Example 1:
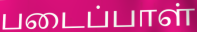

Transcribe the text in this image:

படைப்பாள்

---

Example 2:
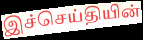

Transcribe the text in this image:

இச்செய்தியின்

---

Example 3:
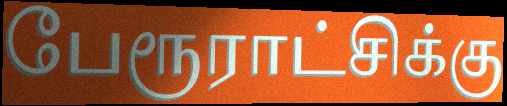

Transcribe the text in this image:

பேரூராட்சிக்கு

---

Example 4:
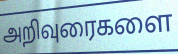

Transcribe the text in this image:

அறிவுரைகளை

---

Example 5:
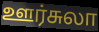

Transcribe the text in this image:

ஊர்சுலா